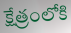
క్షేత్రంలోకి